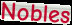
Nobles